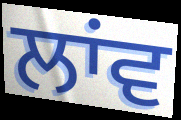
ਲਾਂਵ